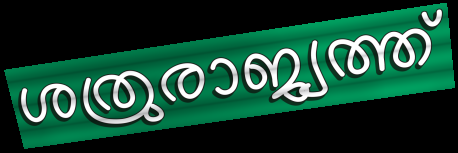
ശത്രുരാജ്യത്ത്